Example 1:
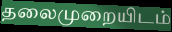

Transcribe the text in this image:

தலைமுறையிடம்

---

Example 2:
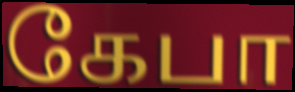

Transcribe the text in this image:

கேபா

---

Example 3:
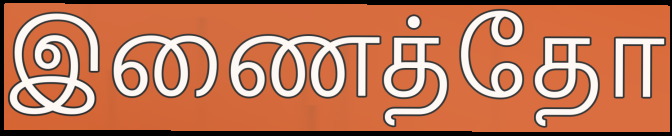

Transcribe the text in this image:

இணைத்தோ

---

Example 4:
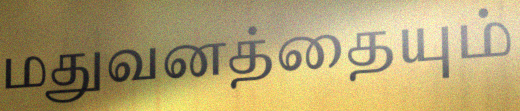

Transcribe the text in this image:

மதுவனத்தையும்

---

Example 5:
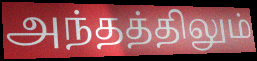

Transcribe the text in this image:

அந்தத்திலும்